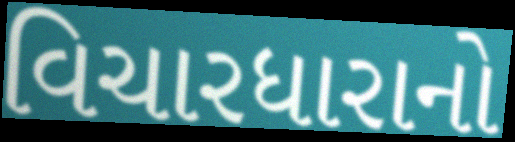
વિચારધારાનો